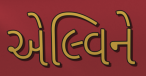
એલ્વિને